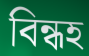
বিন্ধহ